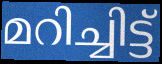
മറിച്ചിട്ട്